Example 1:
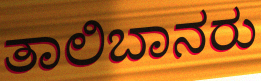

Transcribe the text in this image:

ತಾಲಿಬಾನರು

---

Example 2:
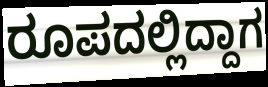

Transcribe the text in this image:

ರೂಪದಲ್ಲಿದ್ದಾಗ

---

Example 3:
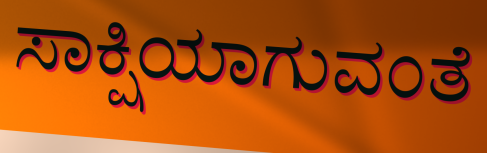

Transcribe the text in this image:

ಸಾಕ್ಷಿಯಾಗುವಂತೆ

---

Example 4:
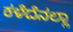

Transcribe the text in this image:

ಕಳೆದೆನಲ್ಲಾ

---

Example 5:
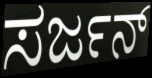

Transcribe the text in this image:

ಸರ್ಜನ್